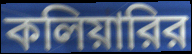
কলিয়ারির